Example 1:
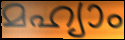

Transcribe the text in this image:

മഹ്യാം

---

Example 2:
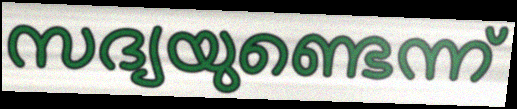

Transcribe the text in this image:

സദ്യയുണ്ടെന്ന്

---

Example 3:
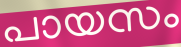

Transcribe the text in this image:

പായസം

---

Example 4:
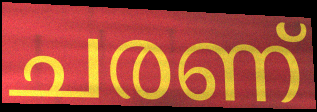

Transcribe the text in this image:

ചരണ്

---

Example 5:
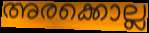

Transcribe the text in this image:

അരക്കൊല്ല